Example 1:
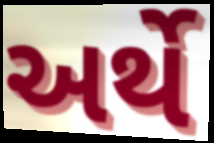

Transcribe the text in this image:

અર્થે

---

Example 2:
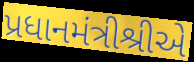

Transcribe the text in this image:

પ્રધાનમંત્રીશ્રીએ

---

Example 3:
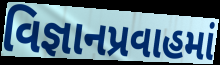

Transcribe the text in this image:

વિજ્ઞાનપ્રવાહમાં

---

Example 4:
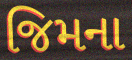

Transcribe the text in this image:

જિમના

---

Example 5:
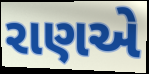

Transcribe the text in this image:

રાણએ